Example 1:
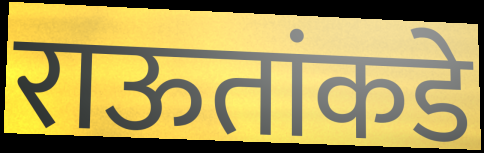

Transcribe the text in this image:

राऊतांकडे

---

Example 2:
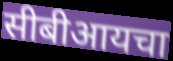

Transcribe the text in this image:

सीबीआयचा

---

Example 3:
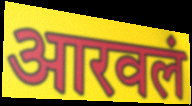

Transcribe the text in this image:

आरवलं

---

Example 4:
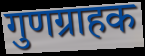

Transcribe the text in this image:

गुणग्राहक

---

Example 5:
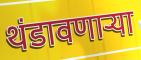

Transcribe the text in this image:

थंडावणाऱ्या